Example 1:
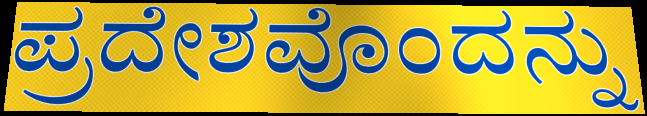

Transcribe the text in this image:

ಪ್ರದೇಶವೊಂದನ್ನು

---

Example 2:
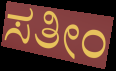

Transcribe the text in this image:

ಸತೀಂ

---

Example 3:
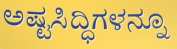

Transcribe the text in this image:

ಅಷ್ಟಸಿದ್ಧಿಗಳನ್ನೂ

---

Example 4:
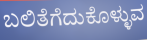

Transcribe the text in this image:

ಬಲಿತೆಗೆದುಕೊಳ್ಳುವ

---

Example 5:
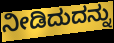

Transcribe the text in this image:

ನೀಡಿದುದನ್ನು